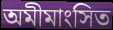
অমীমাংসিত